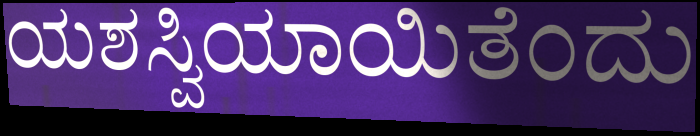
ಯಶಸ್ವಿಯಾಯಿತೆಂದು